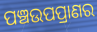
ପଞ୍ଚଉପପ୍ରାଣର